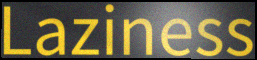
Laziness